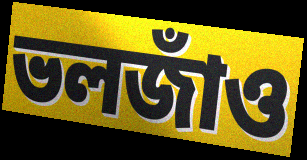
ভলজাঁও